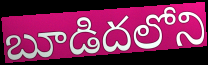
బూడిదలోని